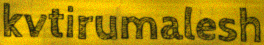
kvtirumalesh